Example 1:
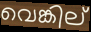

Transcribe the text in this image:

വെങ്കില്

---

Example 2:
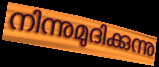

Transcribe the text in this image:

നിന്നുമുദിക്കുന്നു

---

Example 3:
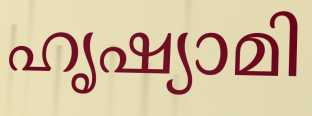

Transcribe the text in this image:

ഹൃഷ്യാമി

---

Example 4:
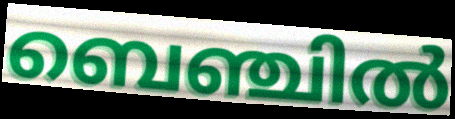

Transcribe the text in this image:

ബെഞ്ചിൽ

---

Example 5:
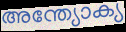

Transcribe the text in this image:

അന്ത്യോക്യ